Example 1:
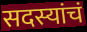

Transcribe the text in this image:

सदस्यांचं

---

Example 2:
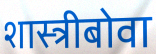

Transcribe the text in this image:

शास्त्रीबोवा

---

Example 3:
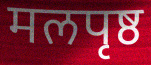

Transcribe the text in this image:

मलपृष्ठ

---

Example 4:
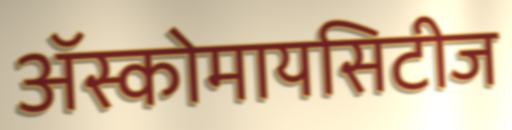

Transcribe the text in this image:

ॲस्कोमायसिटीज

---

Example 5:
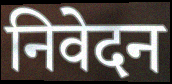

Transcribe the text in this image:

निवेदन